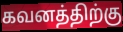
கவனத்திற்கு